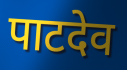
पाटदेव